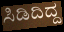
ಸಿಡಿದಿದ್ದ